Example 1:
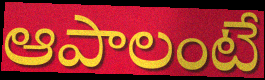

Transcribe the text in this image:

ఆపాలంటే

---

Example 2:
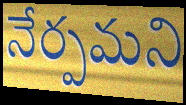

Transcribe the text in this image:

నేర్పమని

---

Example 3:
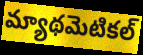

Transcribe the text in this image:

మ్యాథమెటికల్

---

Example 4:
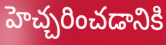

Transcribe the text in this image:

హెచ్చరించడానికి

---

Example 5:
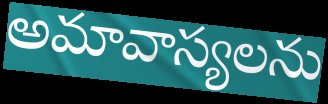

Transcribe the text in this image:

అమావాస్యలను